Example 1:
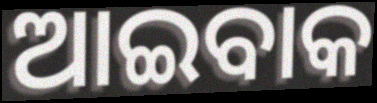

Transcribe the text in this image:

ଆଇବାକ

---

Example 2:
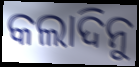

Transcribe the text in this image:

କଲାଦିନୁ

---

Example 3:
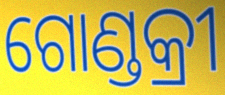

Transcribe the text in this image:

ଗୋଣ୍ଡକ୍ରୀ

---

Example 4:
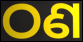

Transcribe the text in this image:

ଠଣ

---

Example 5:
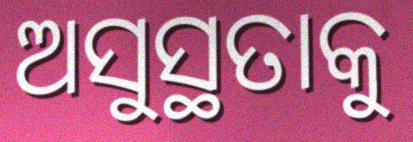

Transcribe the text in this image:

ଅସୁସ୍ଥତାକୁ